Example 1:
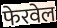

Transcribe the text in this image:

फेरवेल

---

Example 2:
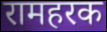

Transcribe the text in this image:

रामहरक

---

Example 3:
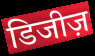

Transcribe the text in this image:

डिजीज़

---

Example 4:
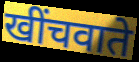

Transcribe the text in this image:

खींचवाते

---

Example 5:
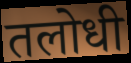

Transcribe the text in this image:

तलोधी